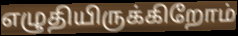
எழுதியிருக்கிறோம்